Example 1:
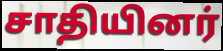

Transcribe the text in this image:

சாதியினர்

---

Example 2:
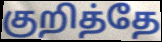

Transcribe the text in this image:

குறித்தே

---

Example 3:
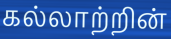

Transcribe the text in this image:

கல்லாற்றின்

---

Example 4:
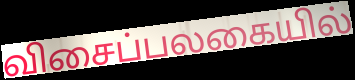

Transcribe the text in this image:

விசைப்பலகையில்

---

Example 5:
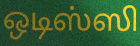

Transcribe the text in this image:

ஒடிஸ்ஸி